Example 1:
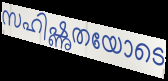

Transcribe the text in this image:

സഹിഷ്ണുതയോടെ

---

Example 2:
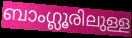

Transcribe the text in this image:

ബാംഗ്ലൂരിലുള്ള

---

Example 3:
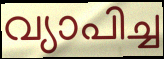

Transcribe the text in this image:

വ്യാപിച്ച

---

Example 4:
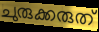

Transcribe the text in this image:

ചുരുക്കരുത്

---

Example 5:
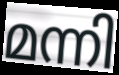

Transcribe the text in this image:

മന്നി